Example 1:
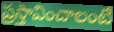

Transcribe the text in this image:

ప్రస్తావించాలంటే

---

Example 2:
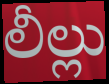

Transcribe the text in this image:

లీల్లు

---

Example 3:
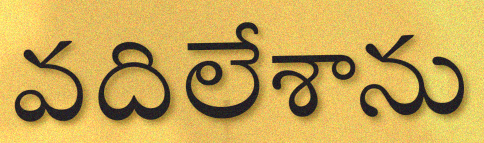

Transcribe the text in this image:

వదిలేశాను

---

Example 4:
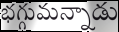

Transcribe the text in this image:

భగ్గుమన్నాడు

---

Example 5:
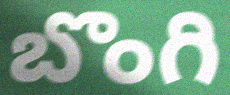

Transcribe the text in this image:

బొంగి